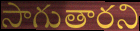
సాగుతారని